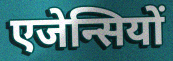
एजेन्सियों